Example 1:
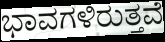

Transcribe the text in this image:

ಭಾವಗಳಿರುತ್ತವೆ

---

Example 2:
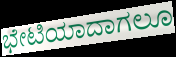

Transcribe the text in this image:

ಭೇಟಿಯಾದಾಗಲೂ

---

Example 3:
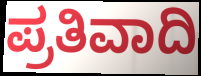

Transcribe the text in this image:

ಪ್ರತಿವಾದಿ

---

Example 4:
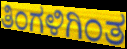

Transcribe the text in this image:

ತಿಂಗಳಿಗಿಂತ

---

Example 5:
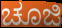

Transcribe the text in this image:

ಚೂಜಿ